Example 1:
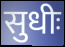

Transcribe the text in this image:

सुधीः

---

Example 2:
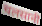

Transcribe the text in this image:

चलसानी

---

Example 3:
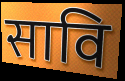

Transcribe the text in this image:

सावि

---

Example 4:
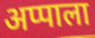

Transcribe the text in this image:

अप्पाला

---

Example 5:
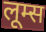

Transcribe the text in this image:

लूम्स